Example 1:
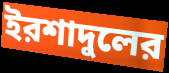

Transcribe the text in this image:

ইরশাদুলের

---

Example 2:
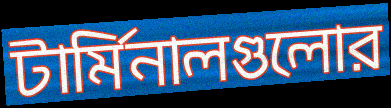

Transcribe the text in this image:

টার্মিনালগুলোর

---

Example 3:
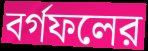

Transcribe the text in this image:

বর্গফলের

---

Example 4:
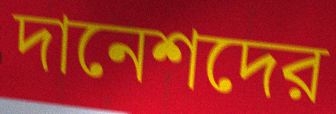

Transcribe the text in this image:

দানেশদের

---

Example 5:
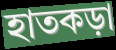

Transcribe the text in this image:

হাতকড়া